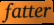
fatter